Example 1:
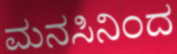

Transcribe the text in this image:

ಮನಸಿನಿಂದ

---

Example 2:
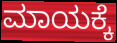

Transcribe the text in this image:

ಮಾಯಕ್ಕೆ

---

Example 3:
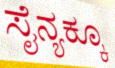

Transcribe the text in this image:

ಸೈನ್ಯಕ್ಕೂ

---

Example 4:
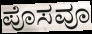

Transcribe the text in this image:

ಪೊಸವೂ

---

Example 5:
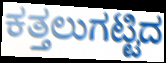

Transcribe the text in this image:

ಕತ್ತಲುಗಟ್ಟಿದ